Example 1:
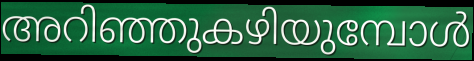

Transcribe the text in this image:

അറിഞ്ഞുകഴിയുമ്പോൾ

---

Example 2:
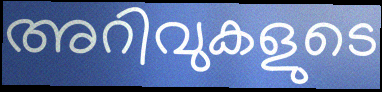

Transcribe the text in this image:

അറിവുകളുടെ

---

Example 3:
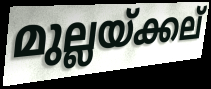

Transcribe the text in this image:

മുല്ലയ്ക്കല്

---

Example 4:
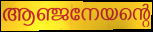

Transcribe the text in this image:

ആഞ്ജനേയന്റെ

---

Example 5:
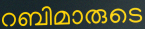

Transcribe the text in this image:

റബിമാരുടെ